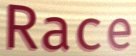
Race